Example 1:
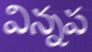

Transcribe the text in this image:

విన్నప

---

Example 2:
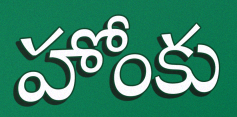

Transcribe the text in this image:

హోంకు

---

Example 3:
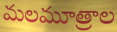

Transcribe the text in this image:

మలమూత్రాల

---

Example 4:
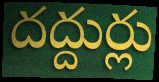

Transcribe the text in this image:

దద్దుర్లు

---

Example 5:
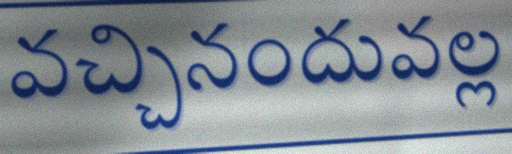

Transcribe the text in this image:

వచ్చినందువల్ల